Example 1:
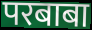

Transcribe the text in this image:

परबाबा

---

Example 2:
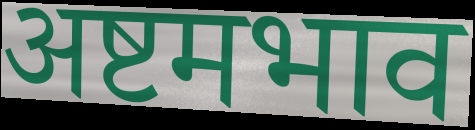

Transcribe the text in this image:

अष्टमभाव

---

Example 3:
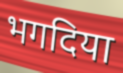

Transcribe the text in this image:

भगदिया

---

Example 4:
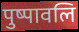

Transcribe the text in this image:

पुष्पावलि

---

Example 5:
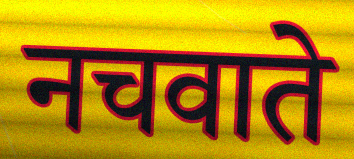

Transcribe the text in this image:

नचवाते